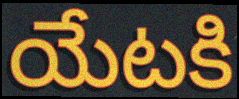
యేటకి